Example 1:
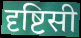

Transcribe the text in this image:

दृष्टिसी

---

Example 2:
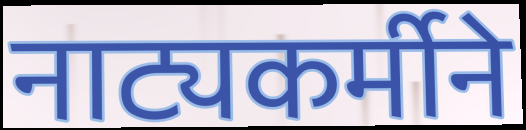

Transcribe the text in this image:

नाट्यकर्मीने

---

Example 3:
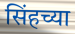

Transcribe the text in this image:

सिंहच्या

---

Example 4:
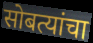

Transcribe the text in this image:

सोबत्यांचा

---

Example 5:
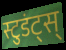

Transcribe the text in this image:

स्टुडंट्स्